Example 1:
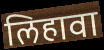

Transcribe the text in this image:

लिहावा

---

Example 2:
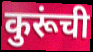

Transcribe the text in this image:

कुरूंची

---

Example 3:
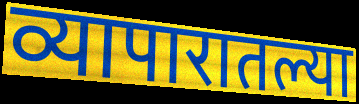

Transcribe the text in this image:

व्यापारातल्या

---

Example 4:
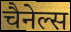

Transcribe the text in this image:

चैनेल्स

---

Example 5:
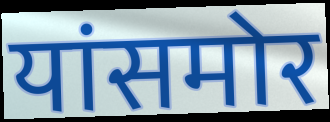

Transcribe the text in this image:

यांसमोर